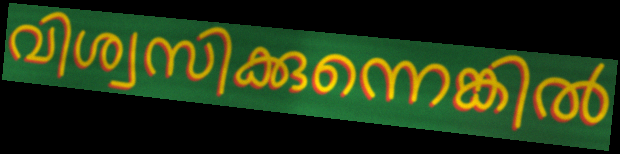
വിശ്വസിക്കുന്നെങ്കിൽ